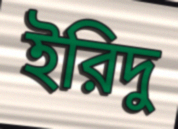
ইরিদু